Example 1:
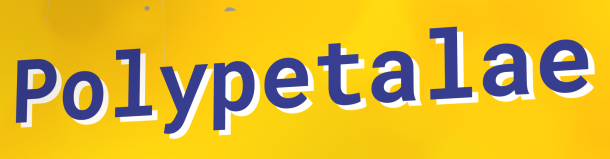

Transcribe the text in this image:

Polypetalae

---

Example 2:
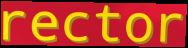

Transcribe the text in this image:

rector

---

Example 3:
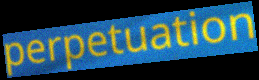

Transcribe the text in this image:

perpetuation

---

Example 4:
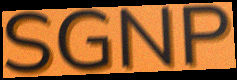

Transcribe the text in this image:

SGNP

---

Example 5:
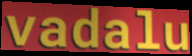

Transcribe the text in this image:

vadalu